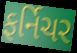
ફર્નિચર